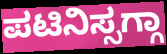
ಪಟಿನಿಸ್ಸಗ್ಗಾ